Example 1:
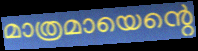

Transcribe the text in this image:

മാത്രമായെന്റെ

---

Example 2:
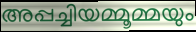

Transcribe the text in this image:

അപ്പച്ചിയമ്മൂമ്മയും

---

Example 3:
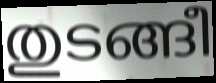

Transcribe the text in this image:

തുടങ്ങീ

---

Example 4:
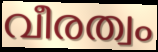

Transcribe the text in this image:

വീരത്വം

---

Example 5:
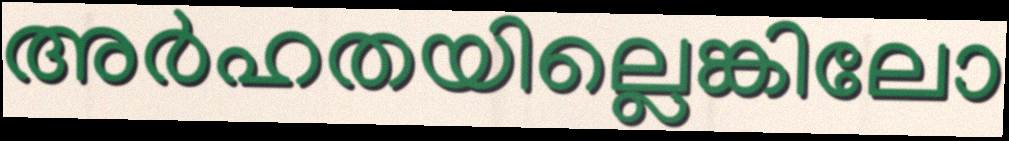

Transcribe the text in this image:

അർഹതയില്ലെങ്കിലോ